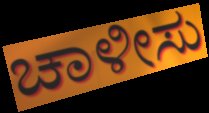
ಚಾಳೀಸು